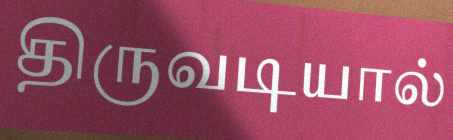
திருவடியால்